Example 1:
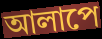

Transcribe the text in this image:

আলাপে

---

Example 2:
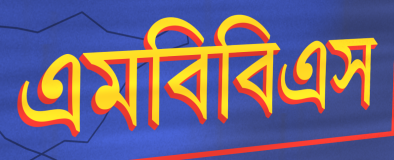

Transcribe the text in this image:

এমবিবিএস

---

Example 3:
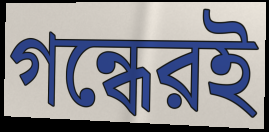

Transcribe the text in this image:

গন্ধেরই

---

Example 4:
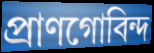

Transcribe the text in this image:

প্রাণগোবিন্দ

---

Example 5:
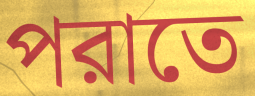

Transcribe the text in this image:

পরাতে